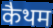
कैथम